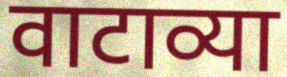
वाटाव्या